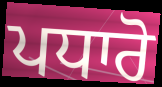
ਪਧਾਰੋ